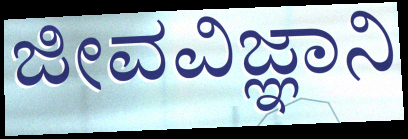
ಜೀವವಿಜ್ಞಾನಿ